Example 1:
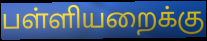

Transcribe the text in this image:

பள்ளியறைக்கு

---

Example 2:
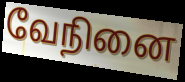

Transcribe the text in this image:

வேநினை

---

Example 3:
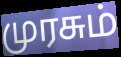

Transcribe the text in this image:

முரசும்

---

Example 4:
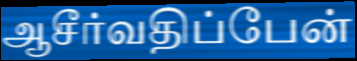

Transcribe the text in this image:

ஆசீர்வதிப்பேன்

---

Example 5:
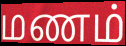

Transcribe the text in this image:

மணம்